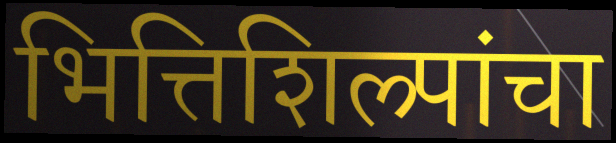
भित्तिशिल्पांचा